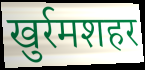
खुर्रमशहर